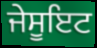
ਜੇਸੂਇਟ